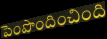
పెంపొందించింది